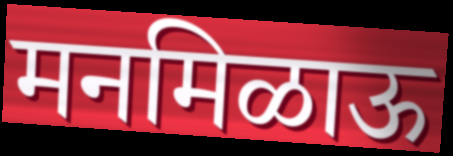
मनमिळाऊ